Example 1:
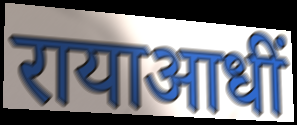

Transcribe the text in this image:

रायाआधीं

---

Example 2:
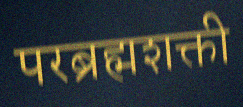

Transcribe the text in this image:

परब्रह्मशक्ती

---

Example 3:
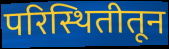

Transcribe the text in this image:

परिस्थितीतून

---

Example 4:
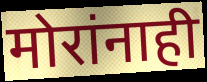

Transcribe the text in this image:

मोरांनाही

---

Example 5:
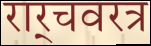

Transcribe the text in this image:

रार्चवरत्र